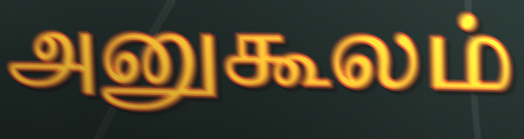
அனுகூலம்